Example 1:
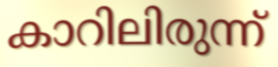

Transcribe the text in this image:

കാറിലിരുന്ന്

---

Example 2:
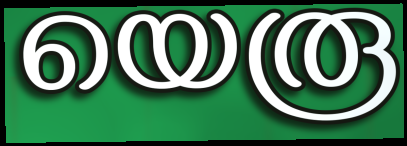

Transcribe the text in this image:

യെരൂ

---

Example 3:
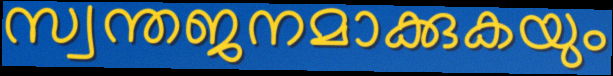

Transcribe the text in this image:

സ്വന്തജനമാക്കുകയും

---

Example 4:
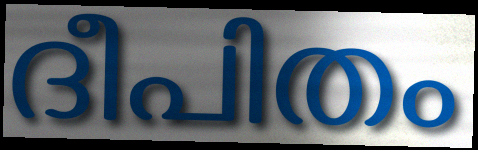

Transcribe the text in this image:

ദീപിതം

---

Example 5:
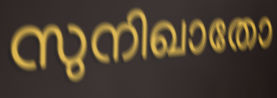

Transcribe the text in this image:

സുനിഖാതോ